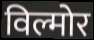
विल्मोर